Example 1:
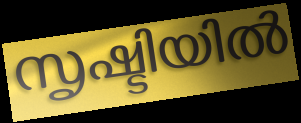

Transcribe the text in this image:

സൃഷ്ടിയിൽ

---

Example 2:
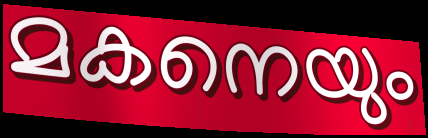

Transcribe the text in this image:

മകനെയും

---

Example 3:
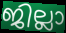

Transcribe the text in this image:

ജില്ലാ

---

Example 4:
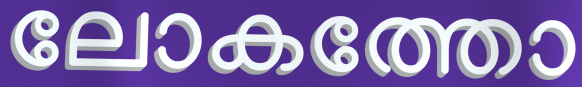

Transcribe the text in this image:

ലോകത്തോ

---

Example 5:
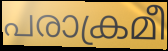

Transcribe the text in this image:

പരാക്രമീ